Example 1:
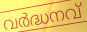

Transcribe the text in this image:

വർദ്ധനവ്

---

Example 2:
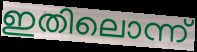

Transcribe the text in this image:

ഇതിലൊന്ന്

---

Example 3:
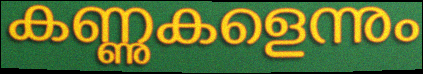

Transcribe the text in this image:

കണ്ണുകളെന്നും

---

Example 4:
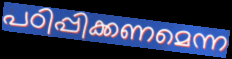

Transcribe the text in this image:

പഠിപ്പിക്കണമെന്ന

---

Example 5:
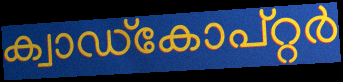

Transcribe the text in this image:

ക്വാഡ്കോപ്റ്റർ